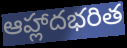
ఆహ్లాదభరిత